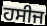
ਹਸੀਜ